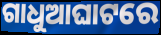
ଗାଧୁଆଘାଟରେ